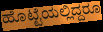
ಹೊಟ್ಟೆಯಲ್ಲಿದ್ದರೂ